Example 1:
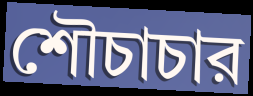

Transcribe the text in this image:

শৌচাচার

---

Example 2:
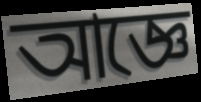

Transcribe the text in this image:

আজ্ঞে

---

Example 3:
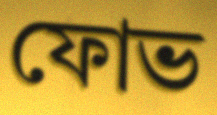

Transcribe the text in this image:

ফোভ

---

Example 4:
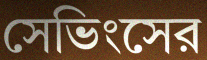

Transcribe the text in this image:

সেভিংসের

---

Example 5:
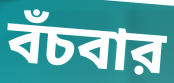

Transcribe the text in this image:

বঁচবার